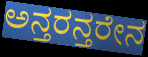
ಅನ್ತರನ್ತರೇನ